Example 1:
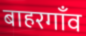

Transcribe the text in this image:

बाहरगाँव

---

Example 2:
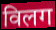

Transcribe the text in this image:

विलग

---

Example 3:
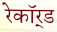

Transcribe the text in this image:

रेकॉर्ड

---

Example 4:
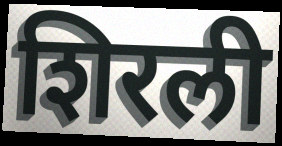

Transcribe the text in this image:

शिरली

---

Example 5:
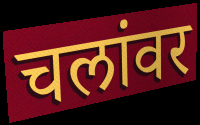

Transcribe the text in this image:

चलांवर